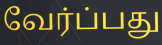
வேர்ப்பது